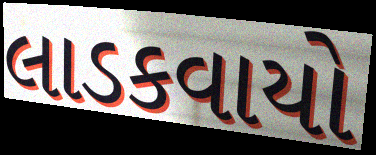
લાડકવાયો